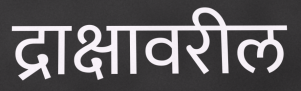
द्राक्षावरील